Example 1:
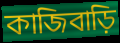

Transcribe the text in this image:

কাজিবাড়ি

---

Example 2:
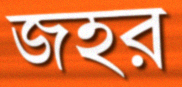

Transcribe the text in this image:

জহর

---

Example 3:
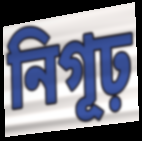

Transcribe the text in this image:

নিগূঢ়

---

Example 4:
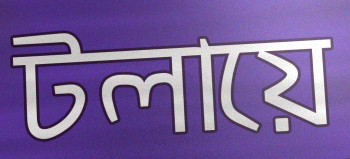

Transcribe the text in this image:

টলায়ে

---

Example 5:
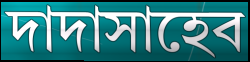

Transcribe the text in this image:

দাদাসাহেব